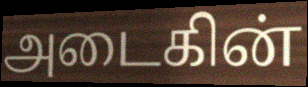
அடைகின்